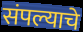
संपल्याचे